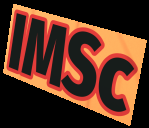
IMSc